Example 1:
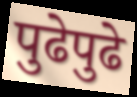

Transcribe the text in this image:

पुढेपुढे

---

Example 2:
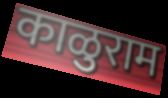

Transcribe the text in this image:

काळुराम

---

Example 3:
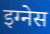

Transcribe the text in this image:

इग्नेस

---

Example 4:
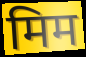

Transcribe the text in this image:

मिम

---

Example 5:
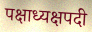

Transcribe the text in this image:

पक्षाध्यक्षपदी